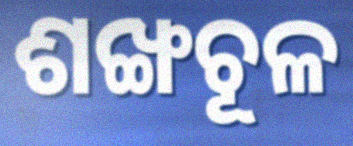
ଶଙ୍ଖଚୂଳ